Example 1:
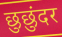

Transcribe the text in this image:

छुछुंदर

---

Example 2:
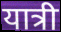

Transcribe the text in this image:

यात्री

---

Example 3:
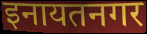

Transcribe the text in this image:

इनायतनगर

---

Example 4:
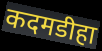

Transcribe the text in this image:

कदमडीहा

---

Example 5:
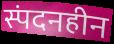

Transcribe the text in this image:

स्पंदनहीन